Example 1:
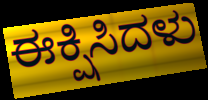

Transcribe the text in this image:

ಈಕ್ಷಿಸಿದಳು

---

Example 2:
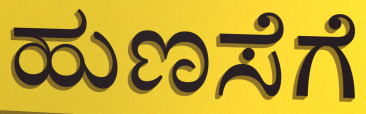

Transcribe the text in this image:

ಹುಣಸೆಗೆ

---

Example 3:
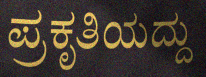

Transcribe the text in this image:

ಪ್ರಕೃತಿಯದ್ದು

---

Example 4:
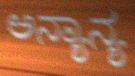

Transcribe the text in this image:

ಅನ್ಯಾನ್ಯ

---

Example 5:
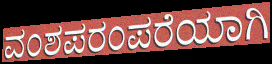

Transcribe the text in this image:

ವಂಶಪರಂಪರೆಯಾಗಿ